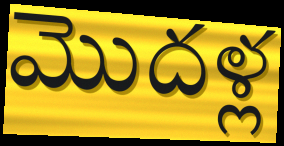
మొదళ్ల